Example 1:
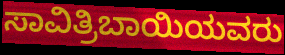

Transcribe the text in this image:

ಸಾವಿತ್ರಿಬಾಯಿಯವರು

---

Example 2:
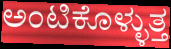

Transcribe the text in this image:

ಅಂಟಿಕೊಳ್ಳುತ್ತ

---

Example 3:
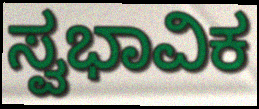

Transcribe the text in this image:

ಸ್ವಭಾವಿಕ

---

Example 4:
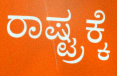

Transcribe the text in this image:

ರಾಷ್ಟ್ರಕ್ಕೆ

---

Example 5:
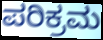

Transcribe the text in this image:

ಪರಿಕ್ರಮ